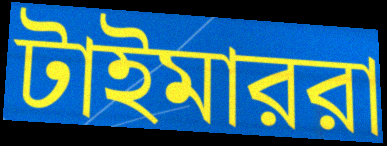
টাইমাররা